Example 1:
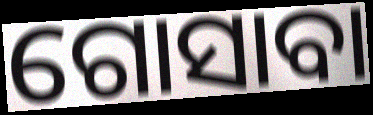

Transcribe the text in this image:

ଗୋସାବା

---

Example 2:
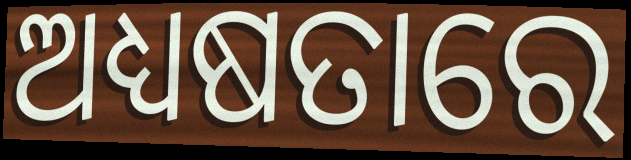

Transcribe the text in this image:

ଅଧ୍ୟଷତାରେ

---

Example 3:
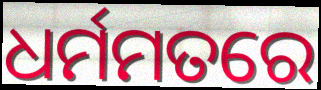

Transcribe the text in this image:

ଧର୍ମମତରେ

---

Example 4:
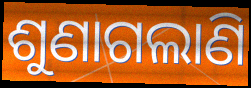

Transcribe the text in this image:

ଶୁଣାଗଲାଣି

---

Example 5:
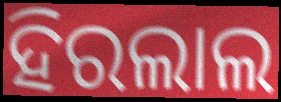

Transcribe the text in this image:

ହିରଲାଲ